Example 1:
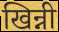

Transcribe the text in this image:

खिन्नी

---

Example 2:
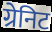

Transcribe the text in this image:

ग्रेनिट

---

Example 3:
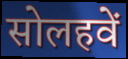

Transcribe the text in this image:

सोलहवें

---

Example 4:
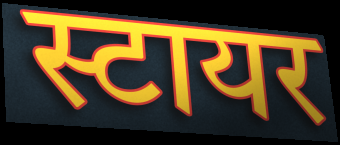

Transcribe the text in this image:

स्टायर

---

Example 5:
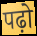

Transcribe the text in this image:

पढ़ो